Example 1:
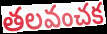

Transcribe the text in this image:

తలవంచక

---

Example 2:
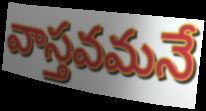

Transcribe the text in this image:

వాస్తవమనే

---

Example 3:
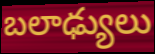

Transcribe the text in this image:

బలాఢ్యులు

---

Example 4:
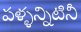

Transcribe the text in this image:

పళ్ళన్నిటినీ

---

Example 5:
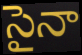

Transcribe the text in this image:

సైనా